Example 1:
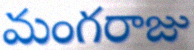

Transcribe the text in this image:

మంగరాజు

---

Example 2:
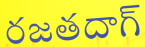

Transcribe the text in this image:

రజతదాగ్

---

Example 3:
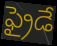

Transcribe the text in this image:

ఫ్రైడే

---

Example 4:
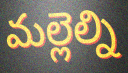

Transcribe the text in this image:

మల్లెల్ని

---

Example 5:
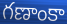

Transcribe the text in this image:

గణాంకా